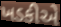
ખડકીએ